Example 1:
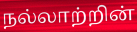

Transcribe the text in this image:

நல்லாற்றின்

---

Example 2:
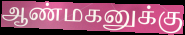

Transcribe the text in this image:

ஆண்மகனுக்கு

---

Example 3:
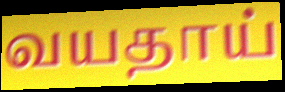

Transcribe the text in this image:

வயதாய்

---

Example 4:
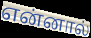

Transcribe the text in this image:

என்னால்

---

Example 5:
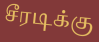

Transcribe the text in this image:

சீரடிக்கு